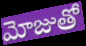
మోజుతో